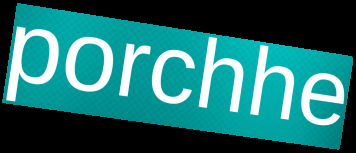
porchhe